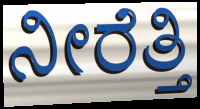
ನೀರೆತ್ತಿ